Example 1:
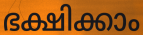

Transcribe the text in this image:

ഭക്ഷിക്കാം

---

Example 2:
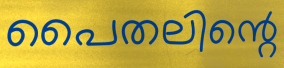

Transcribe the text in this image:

പൈതലിന്റെ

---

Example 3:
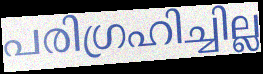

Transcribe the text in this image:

പരിഗ്രഹിച്ചില്ല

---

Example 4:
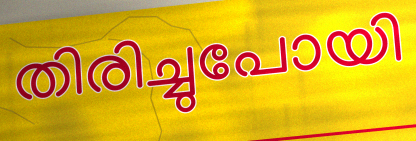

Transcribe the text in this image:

തിരിച്ചുപോയി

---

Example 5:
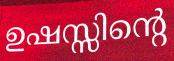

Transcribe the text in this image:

ഉഷസ്സിന്റെ